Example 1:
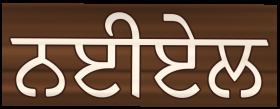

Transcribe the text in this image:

ਨਈਏਲ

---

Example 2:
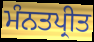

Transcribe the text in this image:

ਮੰਨਤਪ੍ਰੀਤ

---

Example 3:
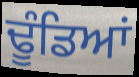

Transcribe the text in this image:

ਢੂੰਡਿਆਂ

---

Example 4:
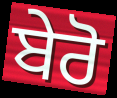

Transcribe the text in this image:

ਬੇਰੋ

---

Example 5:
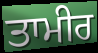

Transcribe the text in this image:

ਤਾਮੀਰ